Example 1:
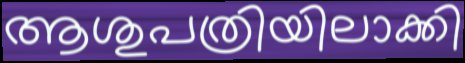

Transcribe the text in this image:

ആശുപത്രിയിലാക്കി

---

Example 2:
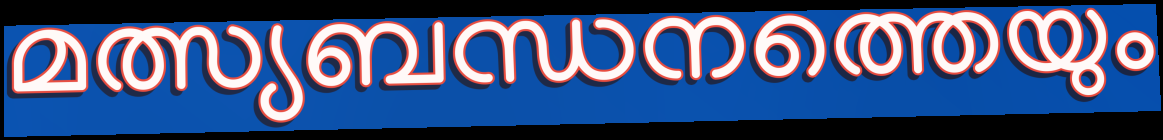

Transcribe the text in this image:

മത്സ്യബന്ധനത്തെയും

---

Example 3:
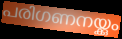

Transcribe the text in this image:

പരിഗണനയ്ക്കും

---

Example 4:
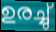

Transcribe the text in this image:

ഉരച്ചു്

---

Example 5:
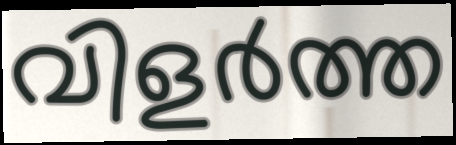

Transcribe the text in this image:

വിളർത്ത